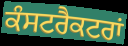
ਕੰਸਟਰੈਕਟਰਾਂ